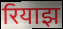
रियाझ